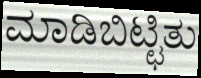
ಮಾಡಿಬಿಟ್ಟಿತು